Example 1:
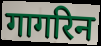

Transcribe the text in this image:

गागरिन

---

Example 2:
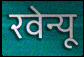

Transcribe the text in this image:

रवेन्यू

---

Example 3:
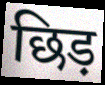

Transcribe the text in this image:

छिड़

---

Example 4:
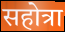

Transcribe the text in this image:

सहोत्रा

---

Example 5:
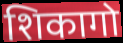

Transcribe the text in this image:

शिकागो